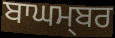
ਬਾਘਮ੍ਬਰ